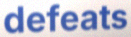
defeats